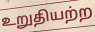
உறுதியற்ற